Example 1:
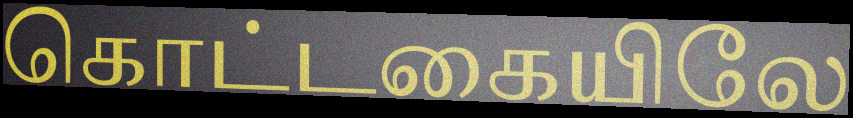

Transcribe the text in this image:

கொட்டகையிலே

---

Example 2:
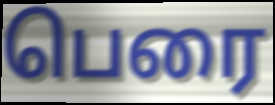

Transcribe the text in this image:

பெரை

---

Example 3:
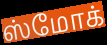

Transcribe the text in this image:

ஸ்மோக்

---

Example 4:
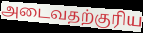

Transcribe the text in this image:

அடைவதற்குரிய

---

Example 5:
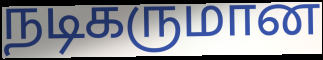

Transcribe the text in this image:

நடிகருமான